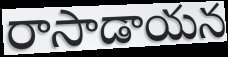
రాసాడాయన